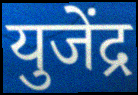
युजेंद्र